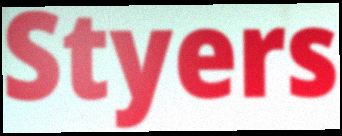
Styers